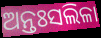
ଅନ୍ତଃସଲିଳା